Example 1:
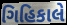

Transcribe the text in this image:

ગિહિકાલે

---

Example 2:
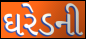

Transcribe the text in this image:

ઘરેડની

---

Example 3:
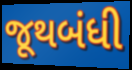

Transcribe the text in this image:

જૂથબંધી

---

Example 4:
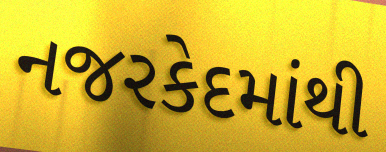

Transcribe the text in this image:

નજરકેદમાંથી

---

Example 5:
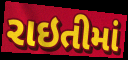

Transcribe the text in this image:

રાઇતીમાં